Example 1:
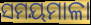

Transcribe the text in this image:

ସମୟମାଳା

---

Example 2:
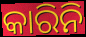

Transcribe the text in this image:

କାରିନି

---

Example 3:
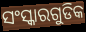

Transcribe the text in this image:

ସଂସ୍କାରଗୁଡିକ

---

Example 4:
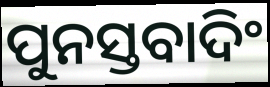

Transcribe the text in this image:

ପୁନସ୍ତବାଦିଂ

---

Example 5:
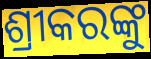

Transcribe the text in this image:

ଶ୍ରୀକରଙ୍କୁ